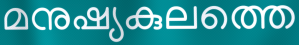
മനുഷ്യകുലത്തെ